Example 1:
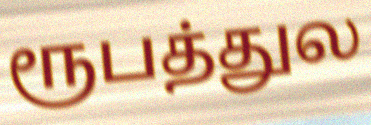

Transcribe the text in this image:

ரூபத்துல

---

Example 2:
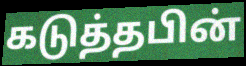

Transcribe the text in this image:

கடுத்தபின்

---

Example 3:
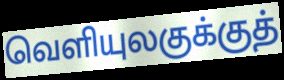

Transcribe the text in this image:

வெளியுலகுக்குத்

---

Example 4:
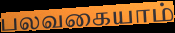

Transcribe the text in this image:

பலவகையாம்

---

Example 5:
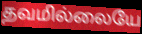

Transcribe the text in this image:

தவமில்லையே